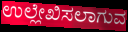
ಉಲ್ಲೇಖಿಸಲಾಗುವ